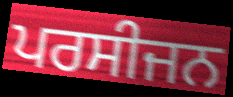
ਪਰਸੀਜਨ